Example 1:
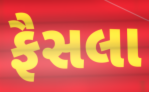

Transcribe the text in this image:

ફૈસલા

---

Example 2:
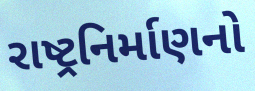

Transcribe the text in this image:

રાષ્ટ્રનિર્માણનો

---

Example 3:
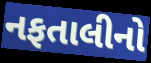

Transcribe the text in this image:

નફતાલીનો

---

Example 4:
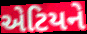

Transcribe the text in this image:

એટિયને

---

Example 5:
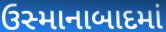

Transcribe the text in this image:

ઉસ્માનાબાદમાં